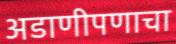
अडाणीपणाचा